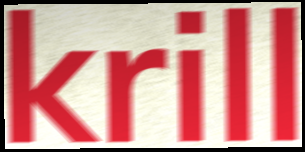
krill